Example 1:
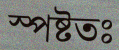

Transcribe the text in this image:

স্পষ্টতঃ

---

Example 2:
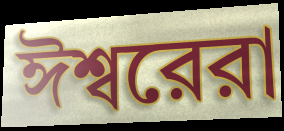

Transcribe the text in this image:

ঈশ্বরেরা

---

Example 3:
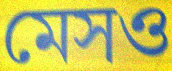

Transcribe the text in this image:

মেসও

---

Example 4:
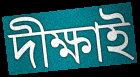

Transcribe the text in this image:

দীক্ষাই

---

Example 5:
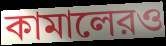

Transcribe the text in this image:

কামালেরও